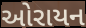
ઓરાયન